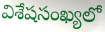
విశేషసంఖ్యలో